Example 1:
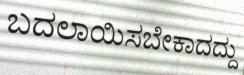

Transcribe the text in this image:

ಬದಲಾಯಿಸಬೇಕಾದದ್ದು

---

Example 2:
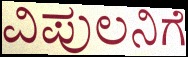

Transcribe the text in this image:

ವಿಪುಲನಿಗೆ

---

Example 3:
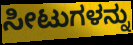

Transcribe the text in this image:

ಸೀಟುಗಳನ್ನು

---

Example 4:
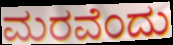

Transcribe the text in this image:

ಮರವೆಂದು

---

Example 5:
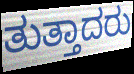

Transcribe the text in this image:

ತುತ್ತಾದರು